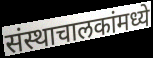
संस्थाचालकांमध्ये